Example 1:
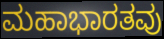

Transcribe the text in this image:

ಮಹಾಭಾರತವು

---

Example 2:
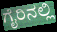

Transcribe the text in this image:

ಗೈರಿನಲ್ಲಿ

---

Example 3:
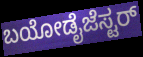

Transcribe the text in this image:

ಬಯೋಡೈಜೆಸ್ಟರ್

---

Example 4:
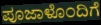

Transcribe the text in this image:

ಪೂಜಾಳೊಂದಿಗೆ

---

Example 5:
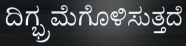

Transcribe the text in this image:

ದಿಗ್ಭ್ರಮೆಗೊಳಿಸುತ್ತದೆ